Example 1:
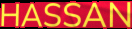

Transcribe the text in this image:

HASSAN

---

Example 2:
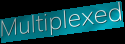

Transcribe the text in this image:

Multiplexed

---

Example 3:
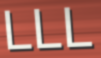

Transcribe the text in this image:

LLL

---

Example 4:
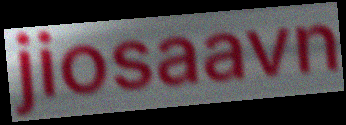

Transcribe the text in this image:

jiosaavn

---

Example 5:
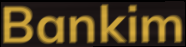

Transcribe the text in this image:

Bankim